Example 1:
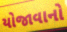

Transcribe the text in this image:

યોજાવાનો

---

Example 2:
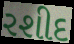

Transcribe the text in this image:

રશીદ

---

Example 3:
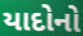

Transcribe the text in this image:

યાદોનો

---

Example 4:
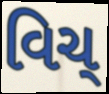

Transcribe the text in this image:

વિચ્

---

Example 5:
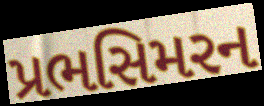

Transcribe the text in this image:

પ્રભસિમરન